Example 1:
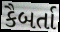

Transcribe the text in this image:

કૈબર્તા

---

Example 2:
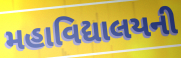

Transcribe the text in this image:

મહાવિદ્યાલયની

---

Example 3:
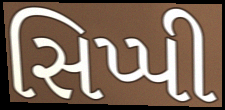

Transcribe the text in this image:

સિપ્પી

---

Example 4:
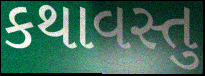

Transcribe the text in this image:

કથાવસ્તુ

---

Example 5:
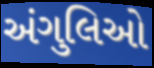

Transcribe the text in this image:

અંગુલિઓ